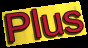
Plus